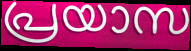
പ്രയാസ